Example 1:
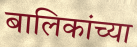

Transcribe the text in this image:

बालिकांच्या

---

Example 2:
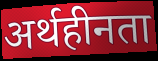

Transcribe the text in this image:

अर्थहीनता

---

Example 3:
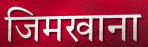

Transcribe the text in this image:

जिमखाना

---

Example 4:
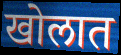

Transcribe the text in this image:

खोलात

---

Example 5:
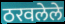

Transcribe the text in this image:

ठरवलेले